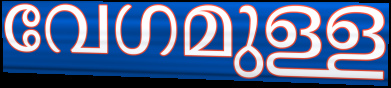
വേഗമുള്ള